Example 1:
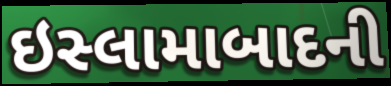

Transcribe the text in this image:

ઇસ્લામાબાદની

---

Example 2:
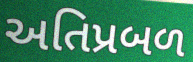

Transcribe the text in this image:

અતિપ્રબળ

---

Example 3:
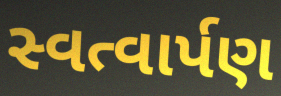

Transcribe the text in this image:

સ્વત્વાર્પણ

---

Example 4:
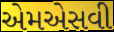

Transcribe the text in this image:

એમએસવી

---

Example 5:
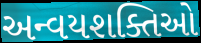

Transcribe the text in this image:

અન્વયશક્તિઓ